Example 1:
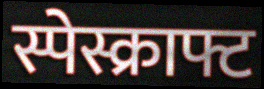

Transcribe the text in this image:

स्पेस्क्राफ्ट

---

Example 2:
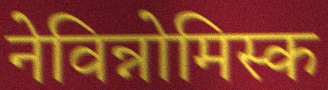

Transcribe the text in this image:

नेविन्नोमिस्क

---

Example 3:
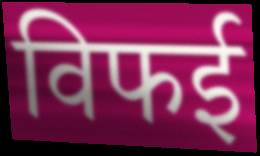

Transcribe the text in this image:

विफई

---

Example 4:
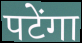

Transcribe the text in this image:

पटेंगा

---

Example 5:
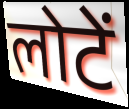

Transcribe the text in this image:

लोटें